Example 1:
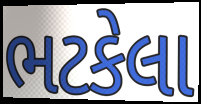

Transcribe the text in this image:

ભટકેલા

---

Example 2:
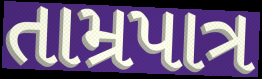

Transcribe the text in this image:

તામ્રપાત્ર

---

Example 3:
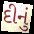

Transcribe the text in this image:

દીનું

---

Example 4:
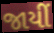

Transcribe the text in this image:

જાયીં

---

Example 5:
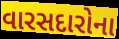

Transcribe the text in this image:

વારસદારોના